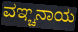
ವಞ್ಚನಾಯ